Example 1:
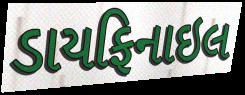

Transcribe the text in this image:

ડાયફિનાઇલ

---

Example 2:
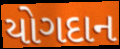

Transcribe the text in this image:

યોગદાન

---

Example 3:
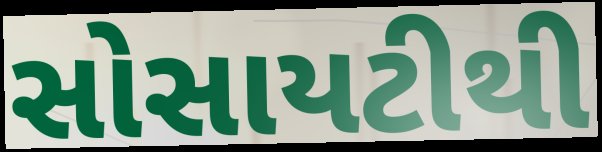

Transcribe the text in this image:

સોસાયટીથી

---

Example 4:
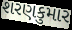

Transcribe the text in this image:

શરણકુમાર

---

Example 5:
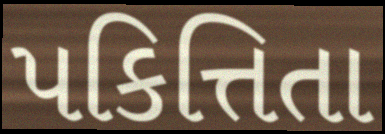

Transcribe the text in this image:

પકિત્તિતા